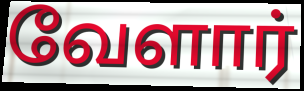
வேளார்